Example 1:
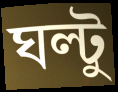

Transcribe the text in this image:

ঘল্টু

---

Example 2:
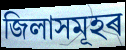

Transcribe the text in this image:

জিলাসমূহৰ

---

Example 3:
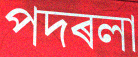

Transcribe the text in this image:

পদৰলা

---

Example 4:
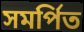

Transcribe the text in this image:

সমৰ্পিত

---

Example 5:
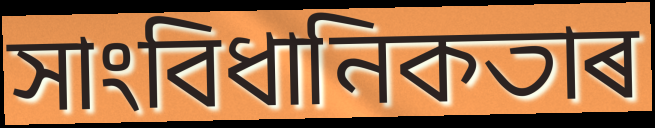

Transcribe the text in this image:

সাংবিধানিকতাৰ